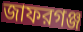
জাফরগঞ্জ